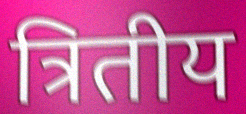
त्रितीय